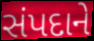
સંપદાને